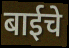
बाईचे